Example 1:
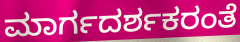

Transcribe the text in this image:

ಮಾರ್ಗದರ್ಶಕರಂತೆ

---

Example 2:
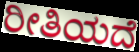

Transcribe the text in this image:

ರೀತಿಯದೆ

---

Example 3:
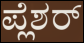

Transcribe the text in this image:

ಪ್ಲೆಶರ್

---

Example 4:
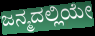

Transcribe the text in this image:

ಜನ್ಮದಲ್ಲಿಯೇ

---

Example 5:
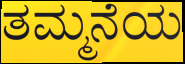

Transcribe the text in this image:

ತಮ್ಮನೆಯ